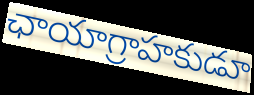
ఛాయాగ్రాహకుడూ